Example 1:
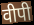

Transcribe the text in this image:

वीपी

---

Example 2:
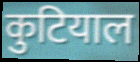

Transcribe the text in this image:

कुटियाल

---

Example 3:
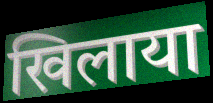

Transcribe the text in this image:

खिलाया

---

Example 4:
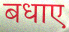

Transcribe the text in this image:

बधाए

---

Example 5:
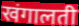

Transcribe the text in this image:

खंगालती